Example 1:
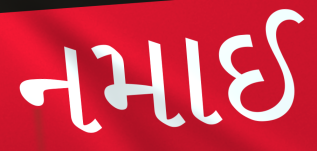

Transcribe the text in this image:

નમાઈ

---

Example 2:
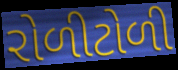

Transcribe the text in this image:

રોળીટોળી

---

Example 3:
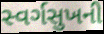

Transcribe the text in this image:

સ્વર્ગસુખની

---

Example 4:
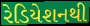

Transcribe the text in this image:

રેડિયેશનથી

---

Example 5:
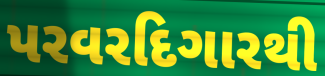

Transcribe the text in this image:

પરવરદિગારથી